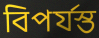
বিপৰ্যস্ত